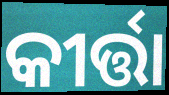
କୀର୍ତ୍ତା